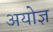
अयोज्ञ